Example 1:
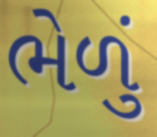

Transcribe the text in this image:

ભેળું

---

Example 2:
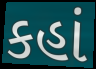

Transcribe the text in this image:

કહાં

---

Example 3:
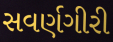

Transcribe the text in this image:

સવર્ણગીરી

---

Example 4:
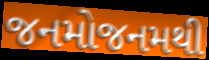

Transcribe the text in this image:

જનમોજનમથી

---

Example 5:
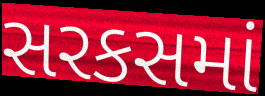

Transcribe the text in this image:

સરકસમાં